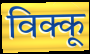
विक्कू